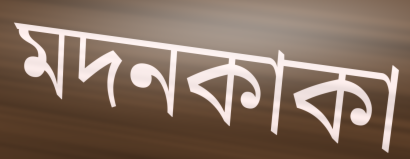
মদনকাকা